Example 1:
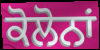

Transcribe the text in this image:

ਕੋਲੋਨਾਂ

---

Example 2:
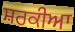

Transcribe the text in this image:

ਸ਼ਰਕੀਆ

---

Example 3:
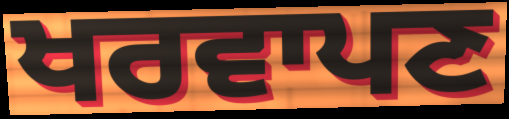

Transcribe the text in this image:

ਖਰਵਾਪਣ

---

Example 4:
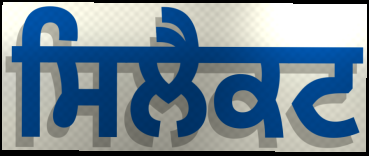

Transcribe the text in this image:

ਸਿਲੈਕਟ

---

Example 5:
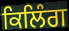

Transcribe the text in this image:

ਕਿਲਿੰਗ